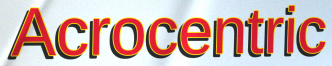
Acrocentric